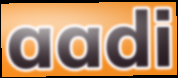
aadi